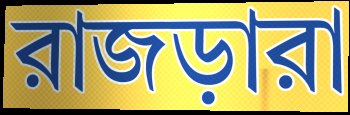
রাজড়ারা